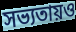
সভ্যতায়ও